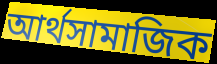
আর্থসামাজিক